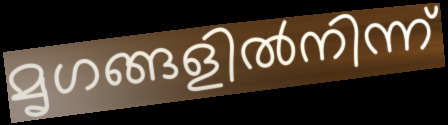
മൃഗങ്ങളിൽനിന്ന്